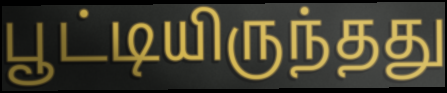
பூட்டியிருந்தது